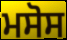
ਮਸੋਸ